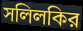
সলিলকির